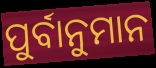
ପୁର୍ବାନୁମାନ